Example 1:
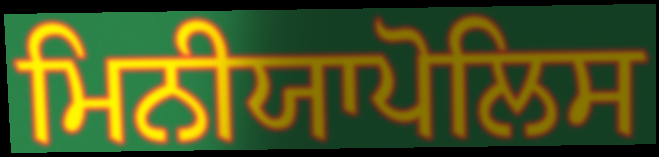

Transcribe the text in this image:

ਮਿਨੀਯਾਪੋਲਿਸ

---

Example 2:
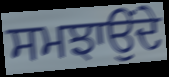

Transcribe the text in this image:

ਸਮਝਾਉਂਦੇ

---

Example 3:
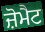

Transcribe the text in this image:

ਜ਼ੋਮੈਟ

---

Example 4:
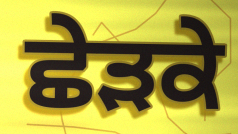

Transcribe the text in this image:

ਛੇੜਕੇ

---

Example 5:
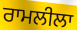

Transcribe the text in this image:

ਰਾਮਲੀਲਾ